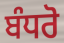
ਬੰਧਰੋ